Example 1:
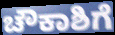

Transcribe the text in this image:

ಚೌಕಾಶಿಗೆ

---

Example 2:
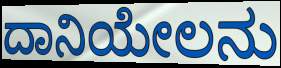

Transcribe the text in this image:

ದಾನಿಯೇಲನು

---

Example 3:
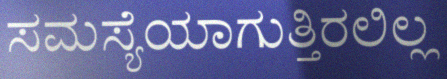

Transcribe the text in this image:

ಸಮಸ್ಯೆಯಾಗುತ್ತಿರಲಿಲ್ಲ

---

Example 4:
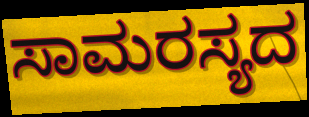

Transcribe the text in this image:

ಸಾಮರಸ್ಯದ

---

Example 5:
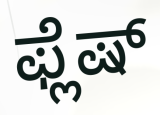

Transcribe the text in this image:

ಫ್ಲೆಷ್